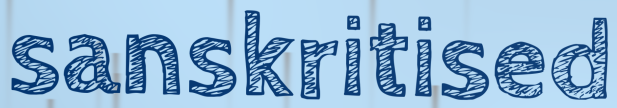
sanskritised